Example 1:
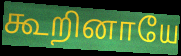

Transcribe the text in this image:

கூறினாயே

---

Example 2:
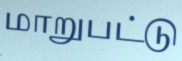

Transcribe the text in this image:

மாறுபட்டு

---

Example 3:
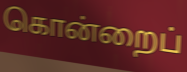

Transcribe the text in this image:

கொன்றைப்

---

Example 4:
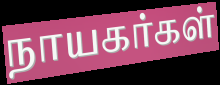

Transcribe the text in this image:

நாயகர்கள்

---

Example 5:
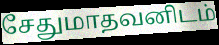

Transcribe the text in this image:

சேதுமாதவனிடம்